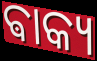
ଵାକ୍ୟ